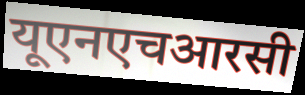
यूएनएचआरसी